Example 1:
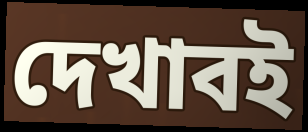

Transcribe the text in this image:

দেখাবই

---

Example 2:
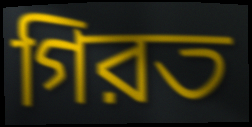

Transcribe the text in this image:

গিরত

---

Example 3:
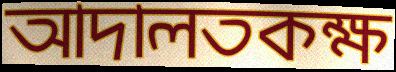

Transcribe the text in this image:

আদালতকক্ষ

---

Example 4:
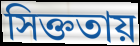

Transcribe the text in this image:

সিক্ততায়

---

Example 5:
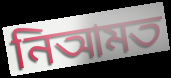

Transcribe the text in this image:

নিআমত